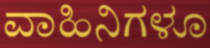
ವಾಹಿನಿಗಳೂ